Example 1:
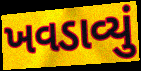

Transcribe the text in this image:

ખવડાવ્યું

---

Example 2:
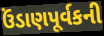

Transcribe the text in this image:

ઉંડાણપૂર્વકની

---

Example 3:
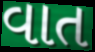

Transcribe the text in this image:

વાત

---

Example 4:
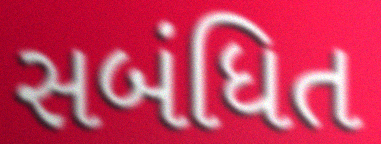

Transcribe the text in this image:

સબંધિત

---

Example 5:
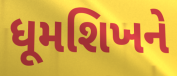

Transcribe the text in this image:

ધૂમશિખને